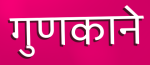
गुणकाने